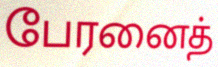
பேரனைத்